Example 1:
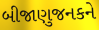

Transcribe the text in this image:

બીજાણુજનકને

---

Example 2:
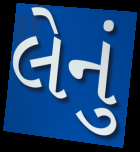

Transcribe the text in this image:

લેનું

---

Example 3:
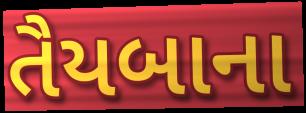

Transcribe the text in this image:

તૈયબાના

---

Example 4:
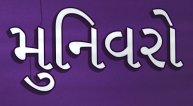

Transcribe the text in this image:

મુનિવરો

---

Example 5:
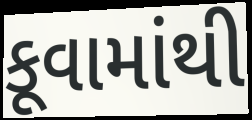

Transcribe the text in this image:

કૂવામાંથી